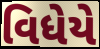
વિધેયે